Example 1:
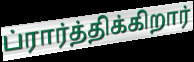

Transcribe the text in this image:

ப்ரார்த்திக்கிறார்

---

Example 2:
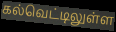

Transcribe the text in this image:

கல்வெட்டிலுள்ள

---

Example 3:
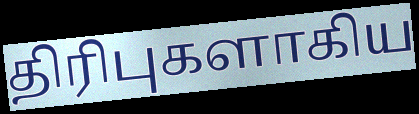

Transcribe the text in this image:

திரிபுகளாகிய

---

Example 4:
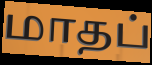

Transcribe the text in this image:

மாதப்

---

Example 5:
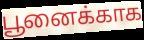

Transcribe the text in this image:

பூனைக்காக